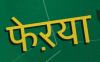
फेऱया